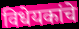
विधेयकांचे